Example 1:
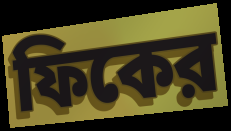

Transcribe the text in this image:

ফিকের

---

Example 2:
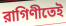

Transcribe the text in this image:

রাগিণীতেই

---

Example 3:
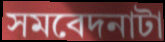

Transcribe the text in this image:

সমবেদনাটা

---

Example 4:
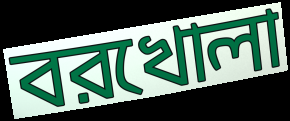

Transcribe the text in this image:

বরখোলা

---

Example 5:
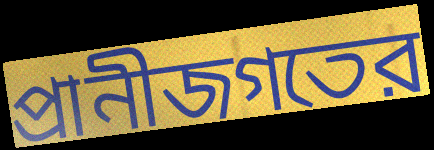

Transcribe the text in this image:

প্রানীজগতের